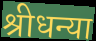
श्रीधन्या